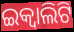
ଇକ୍ୱାଲିଟି